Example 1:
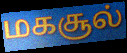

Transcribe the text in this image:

மகசூல்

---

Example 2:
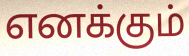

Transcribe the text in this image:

எனக்கும்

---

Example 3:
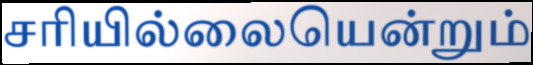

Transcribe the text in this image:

சரியில்லையென்றும்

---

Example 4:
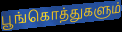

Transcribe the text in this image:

பூங்கொத்துகளும்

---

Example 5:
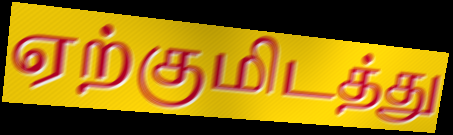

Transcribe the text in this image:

ஏற்குமிடத்து